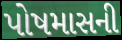
પોષમાસની